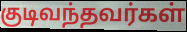
குடிவந்தவர்கள்